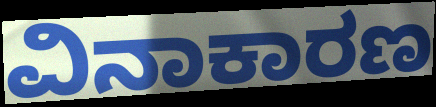
ವಿನಾಕಾರಣ